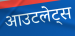
आउटलेट्स